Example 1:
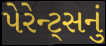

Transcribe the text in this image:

પેરેન્ટ્સનું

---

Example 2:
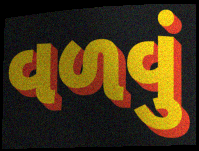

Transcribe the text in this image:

વળવું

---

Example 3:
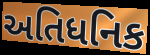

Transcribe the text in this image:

અતિધનિક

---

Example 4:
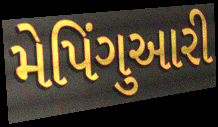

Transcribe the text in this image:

મેપિંગુઆરી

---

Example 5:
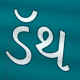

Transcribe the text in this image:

ડૅથ